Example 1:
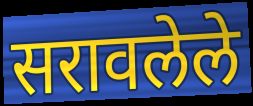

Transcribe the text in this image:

सरावलेले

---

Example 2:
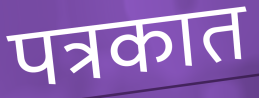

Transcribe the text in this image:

पत्रकात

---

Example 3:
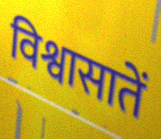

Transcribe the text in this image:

विश्वासातें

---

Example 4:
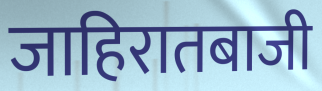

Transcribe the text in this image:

जाहिरातबाजी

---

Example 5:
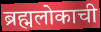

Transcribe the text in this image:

ब्रह्मलोकाची